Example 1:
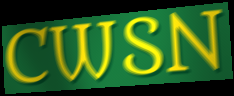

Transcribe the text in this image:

CWSN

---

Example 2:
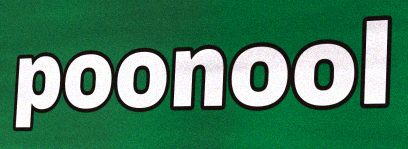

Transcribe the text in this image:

poonool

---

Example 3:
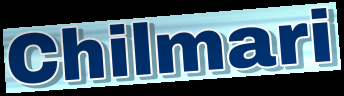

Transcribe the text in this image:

Chilmari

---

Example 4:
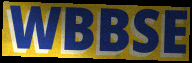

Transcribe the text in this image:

WBBSE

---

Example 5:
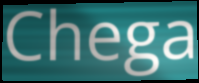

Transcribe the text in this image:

Chega